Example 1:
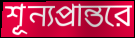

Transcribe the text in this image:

শূন্যপ্রান্তরে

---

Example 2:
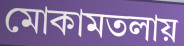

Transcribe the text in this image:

মোকামতলায়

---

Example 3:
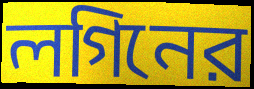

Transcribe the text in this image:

লগিনের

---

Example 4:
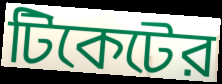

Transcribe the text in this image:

টিকেটের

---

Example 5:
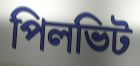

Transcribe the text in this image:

পিলভিট